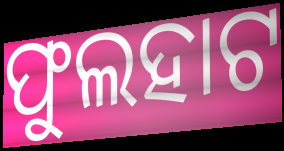
ଫୁଲହାଟ